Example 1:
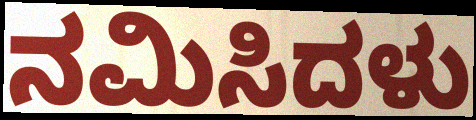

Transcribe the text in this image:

ನಮಿಸಿದಳು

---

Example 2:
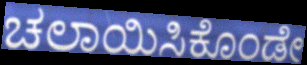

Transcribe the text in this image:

ಚಲಾಯಿಸಿಕೊಂಡೇ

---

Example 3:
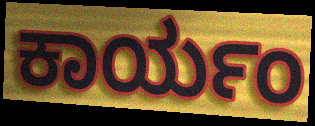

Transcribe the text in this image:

ಕಾರ್ಯಂ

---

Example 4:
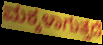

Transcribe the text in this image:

ಮಕ್ಕಳಾಗುತ್ತದೆ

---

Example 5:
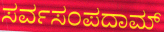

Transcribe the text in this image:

ಸರ್ವಸಂಪದಾಮ್